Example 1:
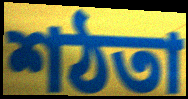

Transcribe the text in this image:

শঠতা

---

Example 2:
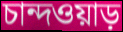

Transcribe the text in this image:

চান্দওয়াড়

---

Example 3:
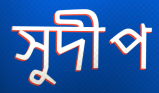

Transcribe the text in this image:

সুদীপ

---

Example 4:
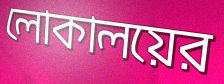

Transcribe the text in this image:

লোকালয়ের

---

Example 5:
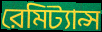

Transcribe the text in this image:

রেমিট্যান্স